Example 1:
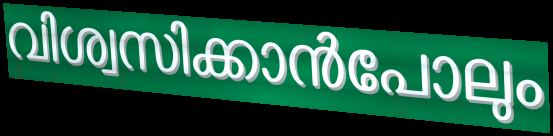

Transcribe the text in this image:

വിശ്വസിക്കാൻപോലും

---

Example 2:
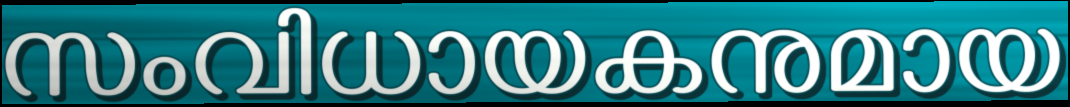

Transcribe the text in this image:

സംവിധായകനുമായ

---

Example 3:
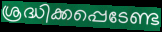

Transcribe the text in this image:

ശ്രദ്ധിക്കപ്പെടേണ്ട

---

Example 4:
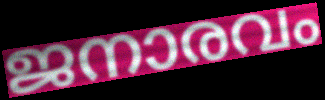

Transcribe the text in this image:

ജനാരവം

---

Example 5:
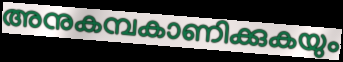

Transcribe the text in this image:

അനുകമ്പകാണിക്കുകയും